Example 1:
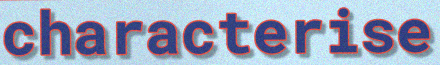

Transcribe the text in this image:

characterise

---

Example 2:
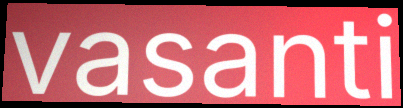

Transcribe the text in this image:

vasanti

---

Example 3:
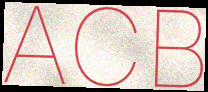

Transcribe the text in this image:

ACB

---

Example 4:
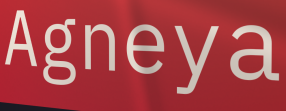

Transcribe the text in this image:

Agneya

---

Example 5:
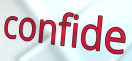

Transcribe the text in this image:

confide